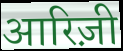
आरिज़ी